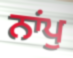
ਨਾਂਪੁ